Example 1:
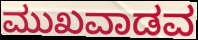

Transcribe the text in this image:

ಮುಖವಾಡವ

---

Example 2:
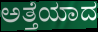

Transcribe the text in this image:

ಅತ್ತೆಯಾದ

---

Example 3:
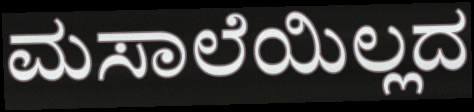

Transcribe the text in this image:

ಮಸಾಲೆಯಿಲ್ಲದ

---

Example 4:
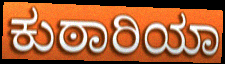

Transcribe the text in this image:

ಕುಠಾರಿಯಾ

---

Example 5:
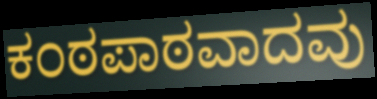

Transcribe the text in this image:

ಕಂಠಪಾಠವಾದವು